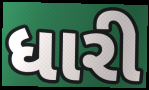
ધારી